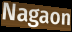
Nagaon